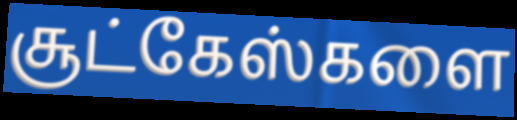
சூட்கேஸ்களை